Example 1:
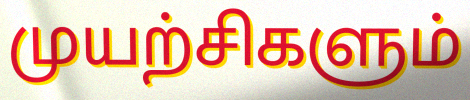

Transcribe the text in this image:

முயற்சிகளும்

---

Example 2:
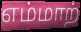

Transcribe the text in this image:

எம்மாற்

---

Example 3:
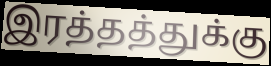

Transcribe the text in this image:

இரத்தத்துக்கு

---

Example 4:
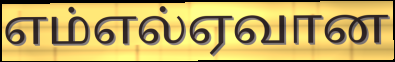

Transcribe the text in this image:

எம்எல்ஏவான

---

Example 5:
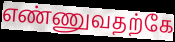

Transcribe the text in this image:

எண்ணுவதற்கே